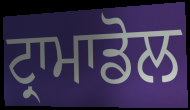
ਟ੍ਰਾਮਾਡੋਲ